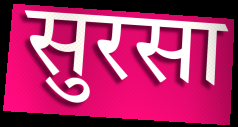
सुरसा